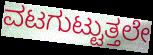
ವಟಗುಟ್ಟುತ್ತಲೇ